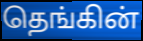
தெங்கின்